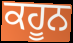
ਕਹੂਨ